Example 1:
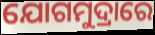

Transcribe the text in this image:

ଯୋଗମୁଦ୍ରାରେ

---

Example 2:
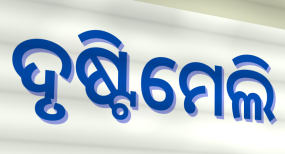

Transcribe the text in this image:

ଦୃଷ୍ଟିମେଲି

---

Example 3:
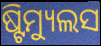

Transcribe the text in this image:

ଷ୍ଟିମ୍ୟୁଲସ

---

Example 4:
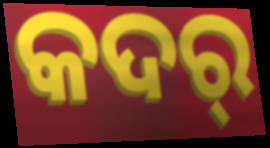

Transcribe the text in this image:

କଦର୍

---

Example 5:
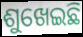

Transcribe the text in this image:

ଶୁଖେଇଛି